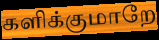
களிக்குமாறே